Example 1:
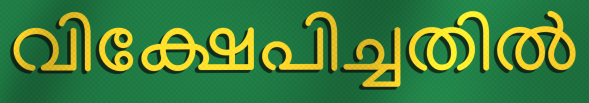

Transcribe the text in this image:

വിക്ഷേപിച്ചതിൽ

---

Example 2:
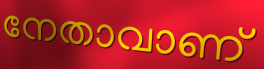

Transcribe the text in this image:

നേതാവാണ്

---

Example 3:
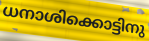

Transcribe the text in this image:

ധനാശിക്കൊട്ടിനു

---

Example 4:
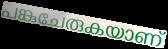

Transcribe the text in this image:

പങ്കുചേരുകയാണ്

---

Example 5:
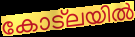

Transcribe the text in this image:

കോട്ലയിൽ